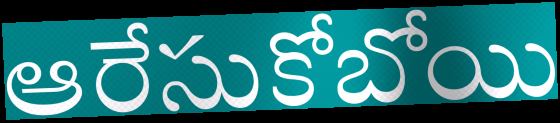
ఆరేసుకోబోయి